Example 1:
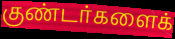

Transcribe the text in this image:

குண்டர்களைக்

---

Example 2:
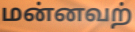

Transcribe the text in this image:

மன்னவற்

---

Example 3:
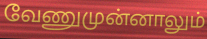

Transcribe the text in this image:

வேணுமுன்னாலும்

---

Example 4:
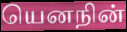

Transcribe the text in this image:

யெனநின்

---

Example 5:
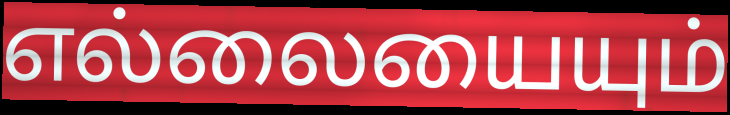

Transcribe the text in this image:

எல்லையையும்